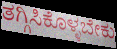
ತಗ್ಗಿಸಿಕೊಳ್ಳಬೇಕು